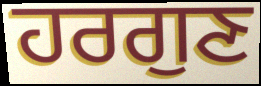
ਹਰਗੁਣ